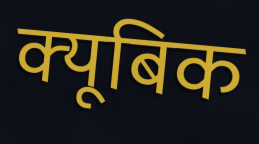
क्‍यूबिक